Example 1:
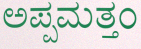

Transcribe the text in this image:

ಅಪ್ಪಮತ್ತಂ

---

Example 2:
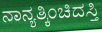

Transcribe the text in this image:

ನಾನ್ಯತ್ಕಿಂಚಿದಸ್ತಿ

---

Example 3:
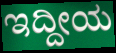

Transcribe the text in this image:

ಇದ್ದೀಯ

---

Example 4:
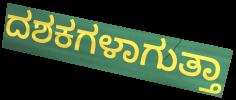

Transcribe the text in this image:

ದಶಕಗಳಾಗುತ್ತಾ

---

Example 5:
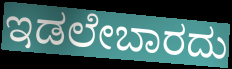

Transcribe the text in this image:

ಇಡಲೇಬಾರದು